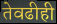
तेवढीही